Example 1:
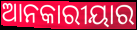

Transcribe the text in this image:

ଆନକାରୀୟାର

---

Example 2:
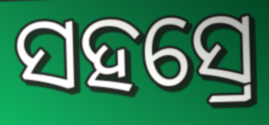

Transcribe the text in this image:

ସହସ୍ରେ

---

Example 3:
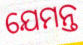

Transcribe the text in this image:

ଯେମନ୍ତ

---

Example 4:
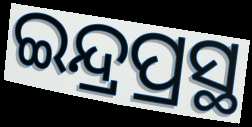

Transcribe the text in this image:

ଇନ୍ଦ୍ରପ୍ରସ୍ଥ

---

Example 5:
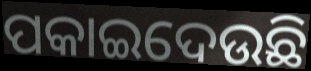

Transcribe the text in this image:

ପକାଇଦେଉଛି